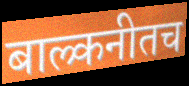
बाल्कनीतच